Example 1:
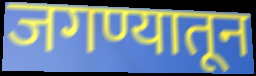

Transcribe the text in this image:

जगण्यातून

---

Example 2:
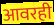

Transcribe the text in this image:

आवरही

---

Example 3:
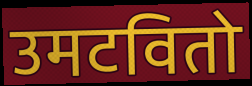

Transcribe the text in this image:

उमटवितो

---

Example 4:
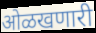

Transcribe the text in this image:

ओळखणारी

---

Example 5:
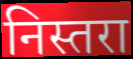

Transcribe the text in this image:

निस्तरा